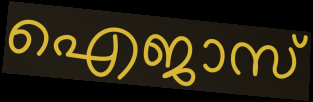
ഐജാസ്